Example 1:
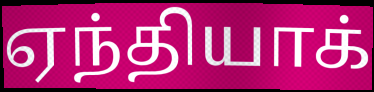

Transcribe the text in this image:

ஏந்தியாக்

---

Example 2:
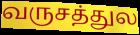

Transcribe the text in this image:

வருசத்துல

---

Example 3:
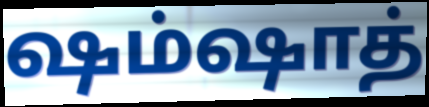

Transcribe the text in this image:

ஷம்ஷாத்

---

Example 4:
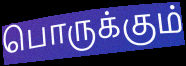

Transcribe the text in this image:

பொருக்கும்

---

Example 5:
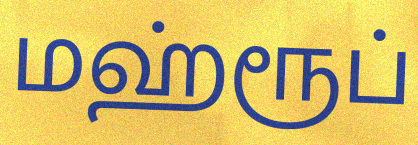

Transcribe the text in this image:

மஹ்ரூப்